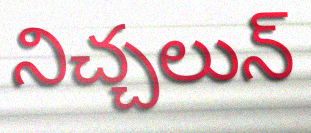
నిచ్చలున్